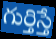
గుర్తిస్తే